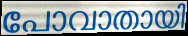
പോവാതായി